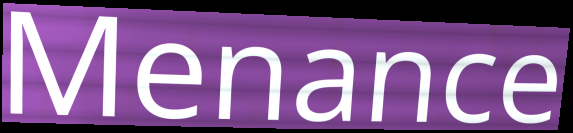
Menance